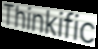
Thinkific